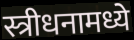
स्त्रीधनामध्ये